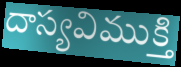
దాస్యవిముక్తి